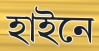
হাইনে